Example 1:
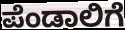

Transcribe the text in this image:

ಪೆಂಡಾಲಿಗೆ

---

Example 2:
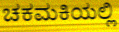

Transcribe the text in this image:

ಚಕಮಕಿಯಲ್ಲಿ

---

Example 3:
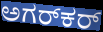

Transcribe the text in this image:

ಅಗರ್‌ಕರ್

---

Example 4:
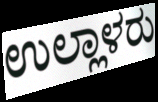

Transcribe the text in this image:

ಉಲ್ಲಾಳರು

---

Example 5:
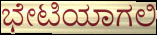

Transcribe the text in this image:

ಭೇಟಿಯಾಗಲಿ